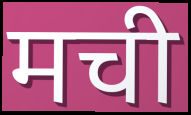
मची